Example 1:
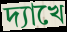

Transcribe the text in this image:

দ্যাখে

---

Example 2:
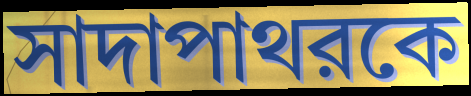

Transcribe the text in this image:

সাদাপাথরকে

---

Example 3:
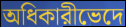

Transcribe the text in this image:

অধিকারীভেদে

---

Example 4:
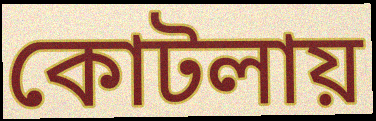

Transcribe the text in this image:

কোটলায়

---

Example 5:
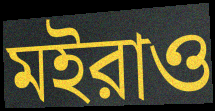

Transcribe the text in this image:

মইরাও